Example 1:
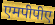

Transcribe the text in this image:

एमपीपीए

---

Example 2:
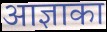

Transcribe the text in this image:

आज्ञाका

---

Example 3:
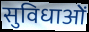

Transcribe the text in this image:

सुविधाओें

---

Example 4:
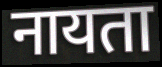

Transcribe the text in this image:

नायता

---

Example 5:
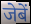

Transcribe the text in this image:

जेबें